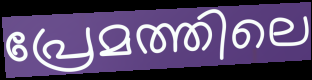
പ്രേമത്തിലെ